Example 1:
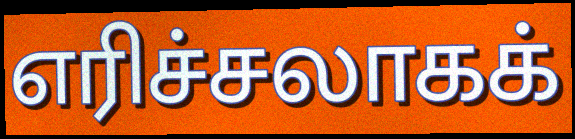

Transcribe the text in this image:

எரிச்சலாகக்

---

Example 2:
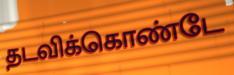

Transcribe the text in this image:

தடவிக்கொண்டே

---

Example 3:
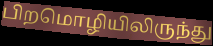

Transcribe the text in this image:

பிறமொழியிலிருந்து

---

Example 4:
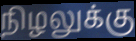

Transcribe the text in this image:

நிழலுக்கு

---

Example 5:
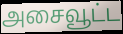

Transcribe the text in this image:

அசைவூட்ட